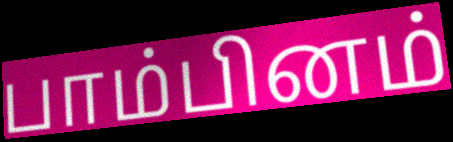
பாம்பினம்